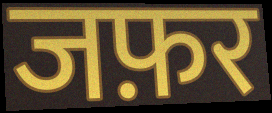
जफ़र